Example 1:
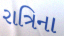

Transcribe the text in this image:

રાત્રિના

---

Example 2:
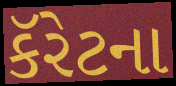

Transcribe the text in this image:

કૅરેટના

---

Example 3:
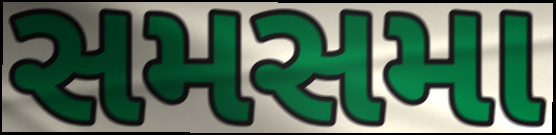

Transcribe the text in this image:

સમસમા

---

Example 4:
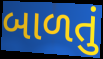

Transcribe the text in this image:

બાળતું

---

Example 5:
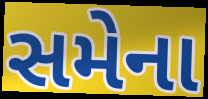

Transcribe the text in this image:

સમેના